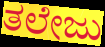
ತಲೇಜು